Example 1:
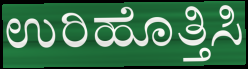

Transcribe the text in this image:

ಉರಿಹೊತ್ತಿಸಿ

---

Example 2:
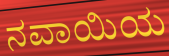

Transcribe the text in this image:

ನವಾಯಿಯ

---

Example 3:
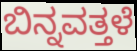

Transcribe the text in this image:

ಬಿನ್ನವತ್ತಳೆ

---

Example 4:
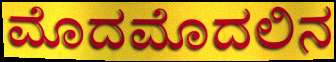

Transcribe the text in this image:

ಮೊದಮೊದಲಿನ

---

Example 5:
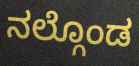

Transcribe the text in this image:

ನಲ್ಗೊಂಡ